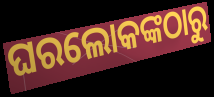
ଘରଲୋକଙ୍କଠାରୁ